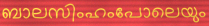
ബാലസിംഹംപോലെയും